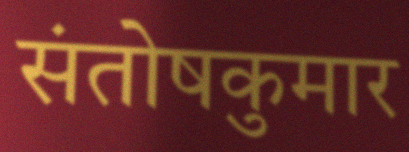
संतोषकुमार